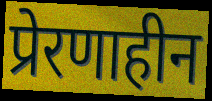
प्रेरणाहीन